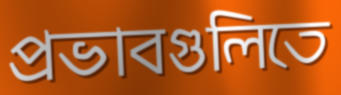
প্রভাবগুলিতে